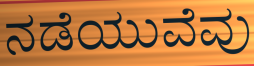
ನಡೆಯುವೆವು